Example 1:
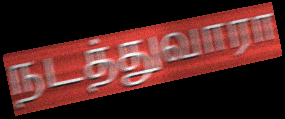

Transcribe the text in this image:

நடத்துவாரா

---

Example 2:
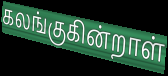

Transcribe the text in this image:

கலங்குகின்றாள்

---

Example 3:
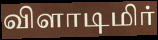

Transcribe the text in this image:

விளாடிமிர்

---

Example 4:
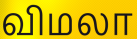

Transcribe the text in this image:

விமலா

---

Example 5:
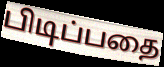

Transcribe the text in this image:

பிடிப்பதை